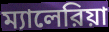
ম্যালেরিয়া